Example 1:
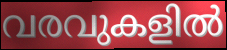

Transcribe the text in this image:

വരവുകളിൽ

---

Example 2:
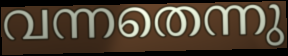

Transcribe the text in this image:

വന്നതെന്നു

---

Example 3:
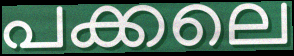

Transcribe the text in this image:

പക്കലെ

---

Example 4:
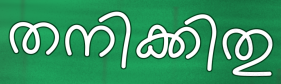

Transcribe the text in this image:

തനിക്കിതു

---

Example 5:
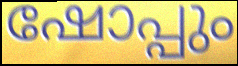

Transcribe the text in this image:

ഷോപ്പും